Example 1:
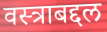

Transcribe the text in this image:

वस्त्राबद्दल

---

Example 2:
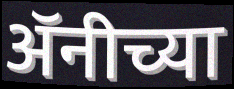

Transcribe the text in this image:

ॲनीच्या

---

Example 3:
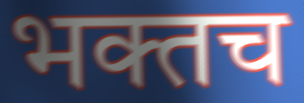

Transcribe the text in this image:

भक्तच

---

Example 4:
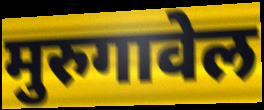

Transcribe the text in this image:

मुरुगावेल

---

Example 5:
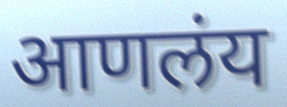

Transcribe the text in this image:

आणलंय